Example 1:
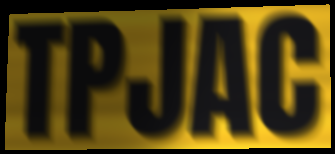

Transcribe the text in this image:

TPJAC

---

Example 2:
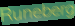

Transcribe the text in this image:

Runeberg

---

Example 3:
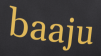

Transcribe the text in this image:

baaju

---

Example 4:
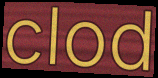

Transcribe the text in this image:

clod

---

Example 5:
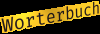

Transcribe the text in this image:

Worterbuch